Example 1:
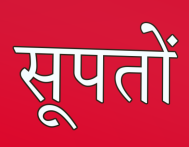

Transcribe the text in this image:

सूपतों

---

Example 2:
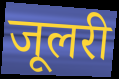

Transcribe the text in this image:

जूलरी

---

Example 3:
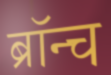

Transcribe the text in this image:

ब्रॉन्च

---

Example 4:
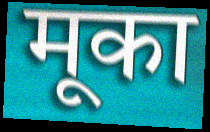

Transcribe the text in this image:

मूका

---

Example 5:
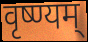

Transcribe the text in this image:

वृष्ण्यम्